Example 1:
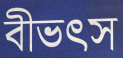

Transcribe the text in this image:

বীভৎস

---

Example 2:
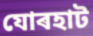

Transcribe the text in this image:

যোৰহাট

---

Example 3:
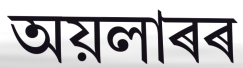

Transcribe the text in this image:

অয়লাৰৰ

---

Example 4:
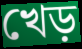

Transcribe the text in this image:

খেড়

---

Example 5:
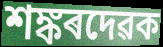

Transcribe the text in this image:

শঙ্কৰদেৱক